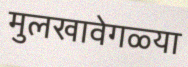
मुलखावेगळ्या